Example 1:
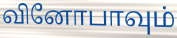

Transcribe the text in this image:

வினோபாவும்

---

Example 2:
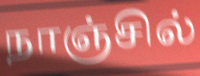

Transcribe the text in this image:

நாஞ்சில்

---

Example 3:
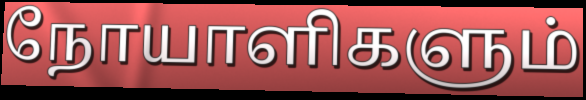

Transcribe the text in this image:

நோயாளிகளும்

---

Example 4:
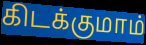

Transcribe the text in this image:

கிடக்குமாம்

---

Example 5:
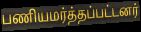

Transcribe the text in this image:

பணியமர்த்தப்பட்டனர்